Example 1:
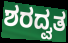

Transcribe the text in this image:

ಶರದ್ವತ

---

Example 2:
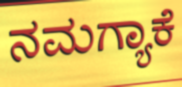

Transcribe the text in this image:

ನಮಗ್ಯಾಕೆ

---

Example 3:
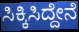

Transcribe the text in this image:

ಸಿಕ್ಕಿಸಿದ್ದೇನೆ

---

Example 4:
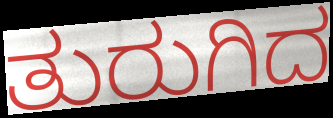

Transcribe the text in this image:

ತುರುಗಿದ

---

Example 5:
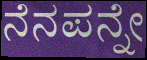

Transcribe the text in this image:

ನೆನಪನ್ನೇ